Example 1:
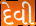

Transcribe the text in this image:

દેવી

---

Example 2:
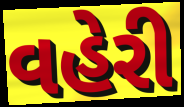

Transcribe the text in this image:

વહેરી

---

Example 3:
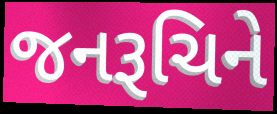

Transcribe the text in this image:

જનરૂચિને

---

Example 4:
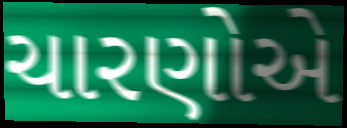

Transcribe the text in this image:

ચારણોએ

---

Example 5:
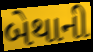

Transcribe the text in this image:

બેથાની